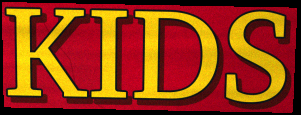
KIDS